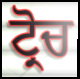
ਟ੍ਰੋਚ